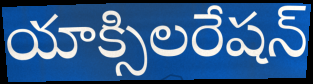
యాక్సిలరేషన్